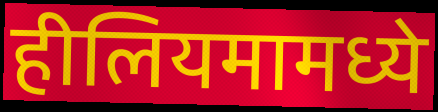
हीलियमामध्ये